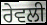
ਰੇਵਲੀ